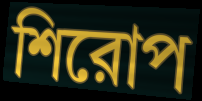
শিরোপ